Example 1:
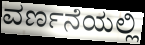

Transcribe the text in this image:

ವರ್ಣನೆಯಲ್ಲಿ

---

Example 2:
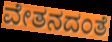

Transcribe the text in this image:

ವೇತನದಂತೆ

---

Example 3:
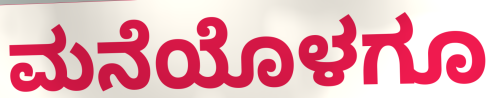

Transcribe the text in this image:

ಮನೆಯೊಳಗೂ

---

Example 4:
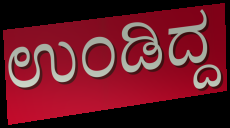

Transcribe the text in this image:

ಉಂಡಿದ್ದ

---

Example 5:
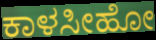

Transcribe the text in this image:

ಕಾಳಸೀಹೋ